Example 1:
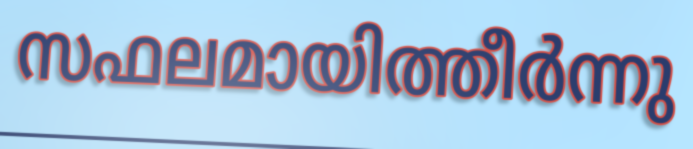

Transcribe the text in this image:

സഫലമായിത്തീർന്നു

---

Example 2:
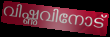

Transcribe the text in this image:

വിഷ്ണുവിനോട്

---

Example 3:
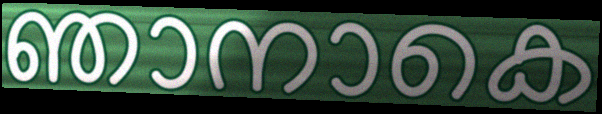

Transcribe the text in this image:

ഞാനാകെ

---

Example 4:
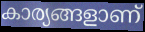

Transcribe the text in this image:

കാര്യങ്ങളാണ്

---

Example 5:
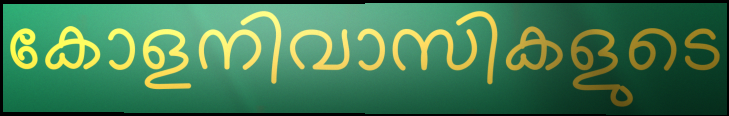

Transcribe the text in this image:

കോളനിവാസികളുടെ